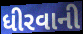
ધીરવાની